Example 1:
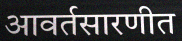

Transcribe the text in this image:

आवर्तसारणीत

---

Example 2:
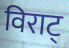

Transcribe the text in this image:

विराट्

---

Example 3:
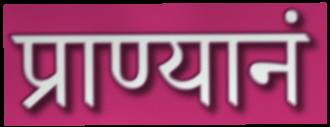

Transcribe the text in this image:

प्राण्यानं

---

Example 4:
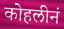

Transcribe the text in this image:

कोहलीनं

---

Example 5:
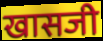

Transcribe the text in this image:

खासजी